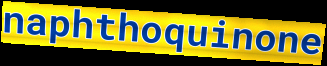
naphthoquinone